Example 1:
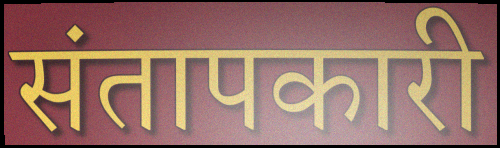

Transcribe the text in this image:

संतापकारी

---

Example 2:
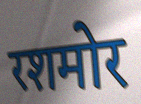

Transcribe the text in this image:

रशमोर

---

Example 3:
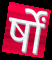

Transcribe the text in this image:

र्षों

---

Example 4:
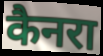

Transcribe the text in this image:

कैनरा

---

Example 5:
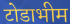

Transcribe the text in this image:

टोडाभीम